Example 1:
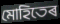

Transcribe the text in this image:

মোহিতেৰ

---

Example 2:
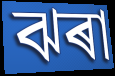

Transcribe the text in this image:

ঝৰা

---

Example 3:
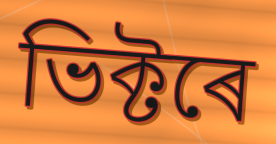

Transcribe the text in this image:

ভিক্টৰে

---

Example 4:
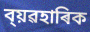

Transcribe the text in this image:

ব্য়ৱহাৰিক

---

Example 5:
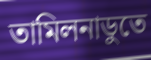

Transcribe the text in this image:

তামিলনাডুতে